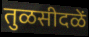
तुळसीदळें